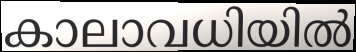
കാലാവധിയിൽ